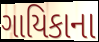
ગાયિકાના